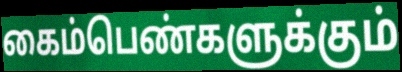
கைம்பெண்களுக்கும்